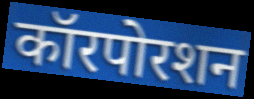
कॉरपोरशन